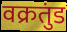
वक्रतुंड